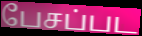
பேசப்பட